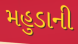
મહુડાની